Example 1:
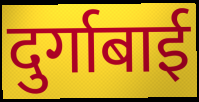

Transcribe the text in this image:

दुर्गाबाई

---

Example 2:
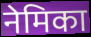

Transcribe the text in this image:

नेमिका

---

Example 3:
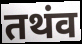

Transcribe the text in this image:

तथंव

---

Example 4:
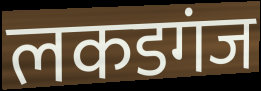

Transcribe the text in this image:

लकडगंज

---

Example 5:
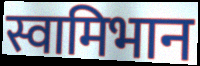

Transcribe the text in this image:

स्वामिभान